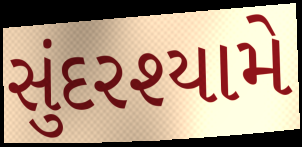
સુંદરશ્યામે